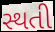
સ્થતી